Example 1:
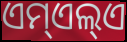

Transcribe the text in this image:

ଏମ୍ଏଲ୍ଏ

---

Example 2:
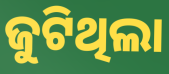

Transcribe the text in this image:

ଜୁଟିଥିଲା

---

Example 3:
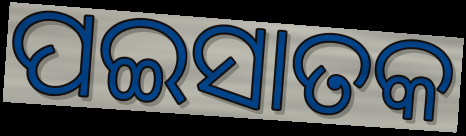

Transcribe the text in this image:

ପଇସାତକ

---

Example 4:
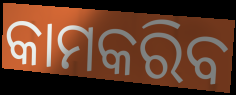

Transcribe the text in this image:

କାମକରିବ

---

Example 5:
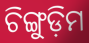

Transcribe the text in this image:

ଚିଙ୍ଗୁଡ଼ିମ